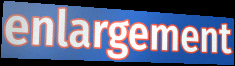
enlargement